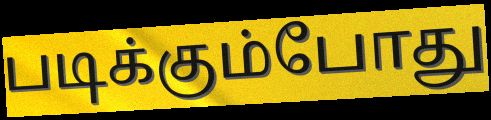
படிக்கும்போது